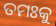
ତମଃକୁ